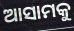
ଆସାମକୁ